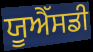
ਯੂਐੱਸਡੀ